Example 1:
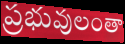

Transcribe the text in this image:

ప్రభువులంతా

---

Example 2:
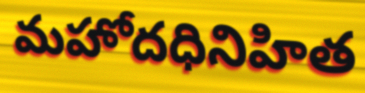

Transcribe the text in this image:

మహోదధినిహిత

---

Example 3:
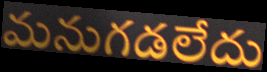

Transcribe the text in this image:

మనుగడలేదు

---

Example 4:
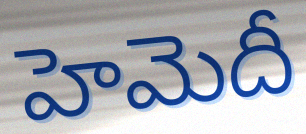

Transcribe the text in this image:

హెమెదీ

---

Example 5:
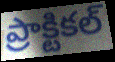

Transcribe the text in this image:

ప్రాక్టికల్